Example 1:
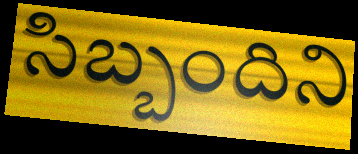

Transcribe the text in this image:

సిబ్బందిని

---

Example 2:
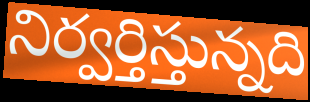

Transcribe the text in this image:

నిర్వర్తిస్తున్నది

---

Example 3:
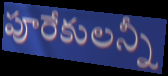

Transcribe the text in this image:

పూరేకులన్నీ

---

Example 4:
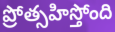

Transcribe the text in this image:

ప్రోత్సహిస్తోంది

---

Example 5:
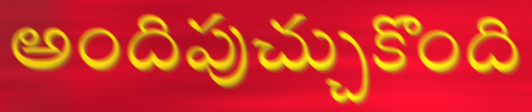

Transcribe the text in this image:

అందిపుచ్చుకొంది